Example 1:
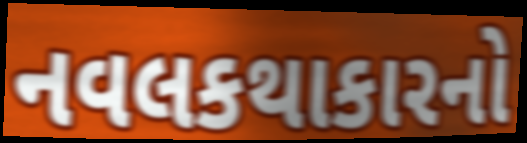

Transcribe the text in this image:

નવલકથાકારનો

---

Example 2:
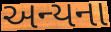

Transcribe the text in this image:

અન્યના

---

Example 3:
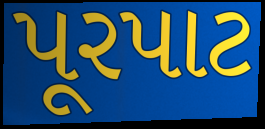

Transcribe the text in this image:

પૂરપાટ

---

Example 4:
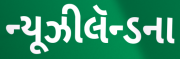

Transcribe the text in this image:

ન્યૂઝીલૅન્ડના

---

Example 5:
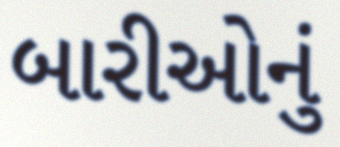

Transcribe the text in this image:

બારીઓનું